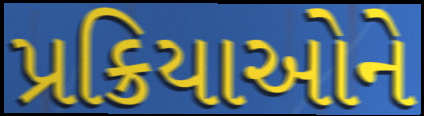
પ્રક્રિયાઓને